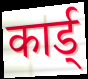
कार्ड्